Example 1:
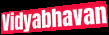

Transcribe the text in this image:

Vidyabhavan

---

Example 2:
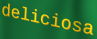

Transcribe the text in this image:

deliciosa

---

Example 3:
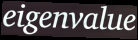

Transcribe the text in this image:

eigenvalue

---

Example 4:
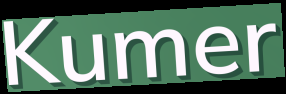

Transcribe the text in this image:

Kumer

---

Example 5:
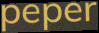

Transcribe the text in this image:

peper